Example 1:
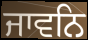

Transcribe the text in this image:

ਜਾਵਨਿ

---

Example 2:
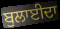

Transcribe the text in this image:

ਬੁਲਾਈਦਾ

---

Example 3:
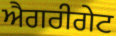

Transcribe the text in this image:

ਐਗਰੀਗੇਟ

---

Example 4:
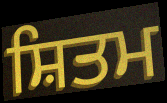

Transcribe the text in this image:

ਸ਼ਿਤਮ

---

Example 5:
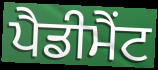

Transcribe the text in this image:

ਪੈਡੀਮੈਂਟ